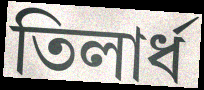
তিলার্ধ